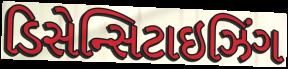
ડિસેન્સિટાઇઝિંગ